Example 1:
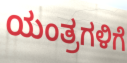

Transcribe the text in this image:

ಯಂತ್ರಗಳಿಗೆ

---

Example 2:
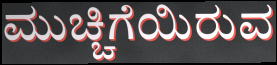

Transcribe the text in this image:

ಮುಚ್ಚಿಗೆಯಿರುವ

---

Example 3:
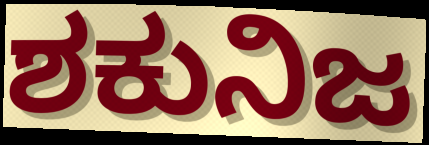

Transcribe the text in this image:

ಶಕುನಿಜ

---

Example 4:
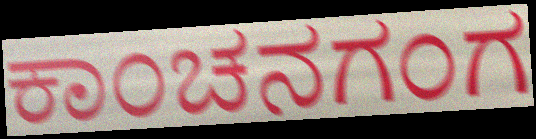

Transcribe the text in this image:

ಕಾಂಚನಗಂಗ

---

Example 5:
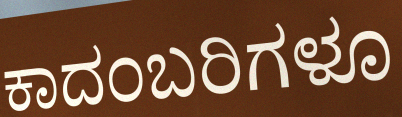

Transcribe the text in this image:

ಕಾದಂಬರಿಗಳೂ